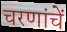
चरणांचें